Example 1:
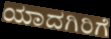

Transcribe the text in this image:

ಯಾದಗಿರಿಗೆ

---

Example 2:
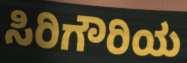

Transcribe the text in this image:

ಸಿರಿಗೌರಿಯ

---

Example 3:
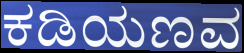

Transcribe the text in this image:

ಕಡಿಯಣವ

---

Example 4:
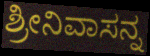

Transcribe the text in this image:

ಶ್ರೀನಿವಾಸನ್ನ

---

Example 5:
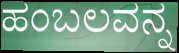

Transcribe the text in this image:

ಹಂಬಲವನ್ನ